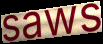
saws